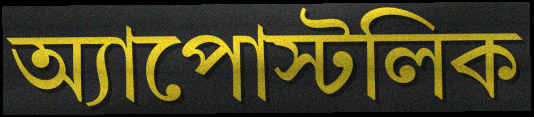
অ্যাপোস্টলিক